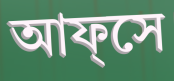
আফ্সে